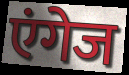
एंगेज